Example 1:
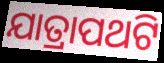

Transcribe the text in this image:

ଯାତ୍ରାପଥଟି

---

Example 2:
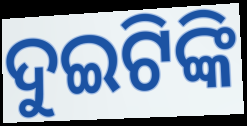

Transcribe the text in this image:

ଦୁଇଟିଙ୍କି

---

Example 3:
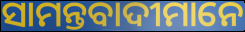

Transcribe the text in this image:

ସାମନ୍ତବାଦୀମାନେ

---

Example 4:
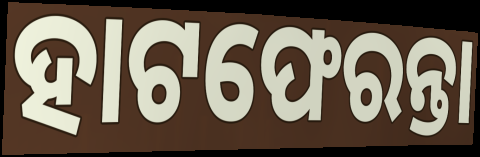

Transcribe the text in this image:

ହାଟଫେରନ୍ତା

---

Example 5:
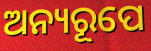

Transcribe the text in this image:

ଅନ୍ୟରୂପେ